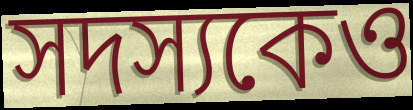
সদস্যকেও